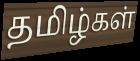
தமிழ்கள்